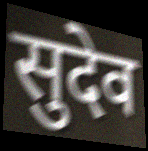
सुदेव